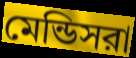
মেন্ডিসরা